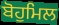
ਬੋਹੁਮਿਲ